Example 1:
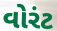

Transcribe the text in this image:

વોરંટ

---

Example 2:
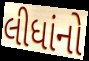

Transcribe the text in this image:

લીધાંનો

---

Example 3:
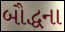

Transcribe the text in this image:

બૌદ્ધના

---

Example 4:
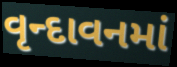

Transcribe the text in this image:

વૃન્દાવનમાં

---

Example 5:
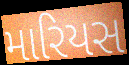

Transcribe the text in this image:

મારિયસ